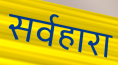
सर्वहारा